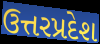
ઉત્તરપ્રદેશ